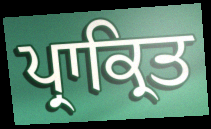
ਪ੍ਰਾਕ੍ਰਿਤ